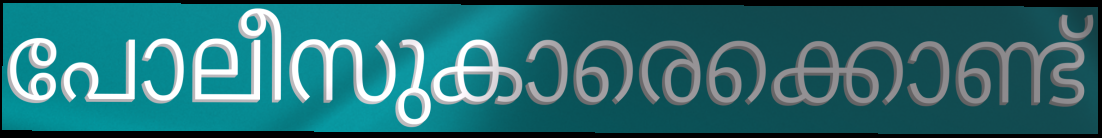
പോലീസുകാരെക്കൊണ്ട്